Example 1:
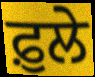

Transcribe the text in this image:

ਫ਼ੁਲੇ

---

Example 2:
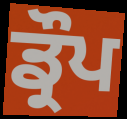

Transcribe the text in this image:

ਡ੍ਰੌਪ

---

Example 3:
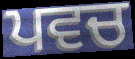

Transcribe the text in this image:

ਪਵਚ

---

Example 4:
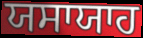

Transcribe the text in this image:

ਯਸਾਯਾਹ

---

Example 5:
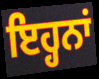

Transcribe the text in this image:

ਇਹ੍ਹਨਾਂ